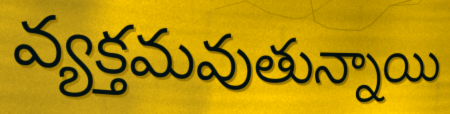
వ్యక్తమవుతున్నాయి